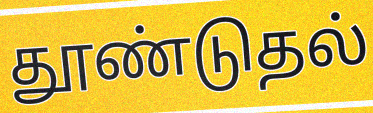
தூண்டுதல்